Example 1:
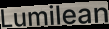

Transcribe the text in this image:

Lumilean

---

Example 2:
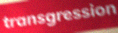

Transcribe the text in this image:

transgression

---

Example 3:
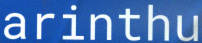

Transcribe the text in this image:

arinthu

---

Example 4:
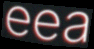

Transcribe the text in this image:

eea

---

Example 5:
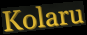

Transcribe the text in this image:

Kolaru